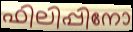
ഫിലിപ്പിനോ